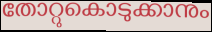
തോറ്റുകൊടുക്കാനും